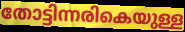
തോട്ടിന്നരികെയുള്ള